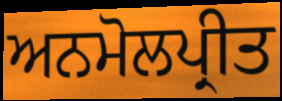
ਅਨਮੋਲਪ੍ਰੀਤ